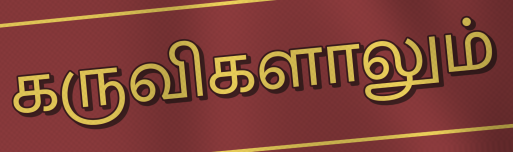
கருவிகளாலும்